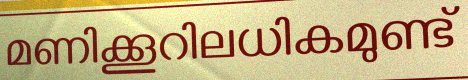
മണിക്കൂറിലധികമുണ്ട്